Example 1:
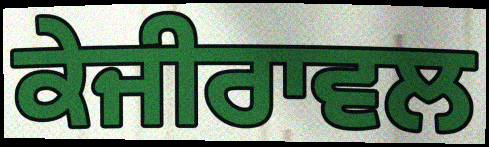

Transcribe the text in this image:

ਕੇਜੀਰਾਵਲ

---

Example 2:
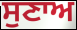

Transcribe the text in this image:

ਸੁਣਾਅ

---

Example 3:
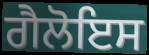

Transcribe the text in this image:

ਗੈਲੋਇਸ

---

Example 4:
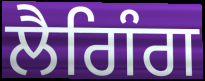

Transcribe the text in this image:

ਲੈਗਿੰਗ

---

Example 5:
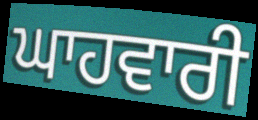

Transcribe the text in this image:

ਘਾਹਵਾਰੀ